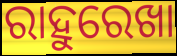
ରାହୁରେଖା